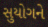
સુયોગને